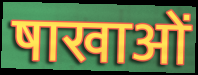
षाखाओं